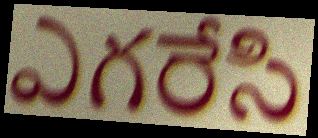
ఎగరేసి